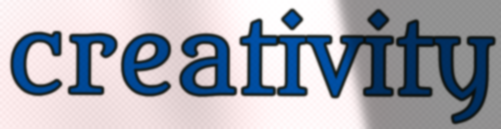
creativity